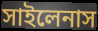
সাইলেনাস